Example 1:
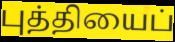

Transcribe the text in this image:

புத்தியைப்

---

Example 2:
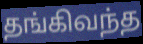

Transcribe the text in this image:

தங்கிவந்த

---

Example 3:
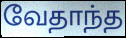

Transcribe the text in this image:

வேதாந்த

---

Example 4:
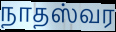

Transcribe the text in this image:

நாதஸ்வர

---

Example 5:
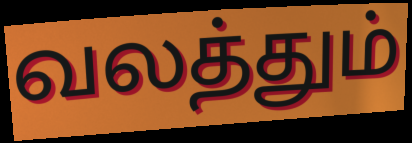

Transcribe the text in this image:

வலத்தும்